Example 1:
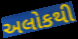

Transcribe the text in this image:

અલોકથી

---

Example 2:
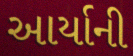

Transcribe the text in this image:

આર્યાની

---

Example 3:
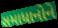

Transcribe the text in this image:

સમાધાનોને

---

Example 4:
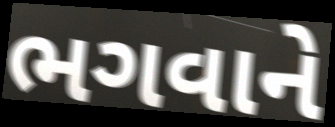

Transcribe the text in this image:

ભગવાને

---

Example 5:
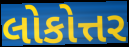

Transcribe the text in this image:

લોકોત્તર